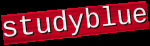
studyblue